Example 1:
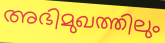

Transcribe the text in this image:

അഭിമുഖത്തിലും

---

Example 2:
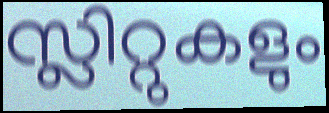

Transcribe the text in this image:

സ്ലിറ്റുകളും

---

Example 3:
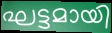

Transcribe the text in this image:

ഘട്ടമായി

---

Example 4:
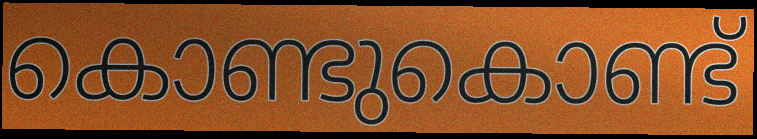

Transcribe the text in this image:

കൊണ്ടുകൊണ്ട്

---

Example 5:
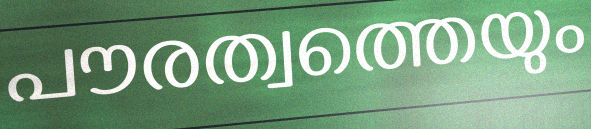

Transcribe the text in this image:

പൗരത്വത്തെയും